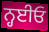
ਨ੍ਹਈਓ